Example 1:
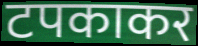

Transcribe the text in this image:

टपकाकर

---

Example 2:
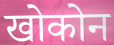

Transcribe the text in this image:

खोकोन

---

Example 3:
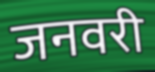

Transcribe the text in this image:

जनवरी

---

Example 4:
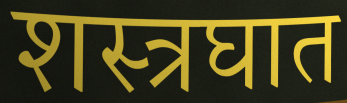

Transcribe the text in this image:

शस्त्रघात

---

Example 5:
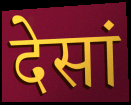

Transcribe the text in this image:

देसां